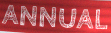
ANNUAL